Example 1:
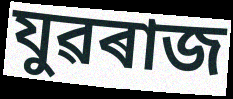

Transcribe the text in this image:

যুৱৰাজ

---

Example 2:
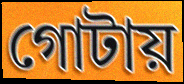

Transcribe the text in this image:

গোটায়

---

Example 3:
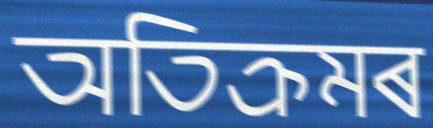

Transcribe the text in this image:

অতিক্ৰমৰ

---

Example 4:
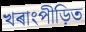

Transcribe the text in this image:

খৰাংপীড়িত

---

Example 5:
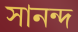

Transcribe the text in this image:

সানন্দ